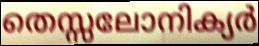
തെസ്സലോനിക്യർ